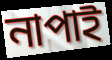
নাপাই